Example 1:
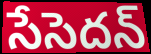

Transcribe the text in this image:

సేసెదన్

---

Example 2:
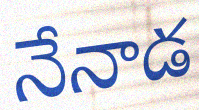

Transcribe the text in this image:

నేనాడ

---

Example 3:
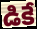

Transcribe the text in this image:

డికే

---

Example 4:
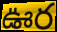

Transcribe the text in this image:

ఊర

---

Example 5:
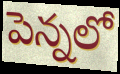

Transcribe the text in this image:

పెన్నలో